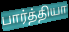
பார்த்தியா